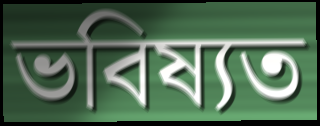
ভবিষ্যত